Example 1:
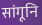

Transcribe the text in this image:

सांगूनि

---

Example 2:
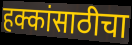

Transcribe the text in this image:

हक्कांसाठीचा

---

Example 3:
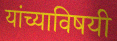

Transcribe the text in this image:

यांच्याविषयी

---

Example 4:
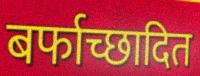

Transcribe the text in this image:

बर्फाच्छादित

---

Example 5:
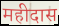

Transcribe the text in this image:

महीदास